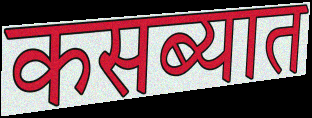
कसब्यात